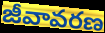
జీవావరణ